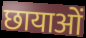
छायाओं